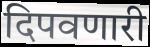
दिपवणारी